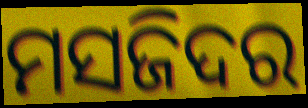
ମସଜିଦର